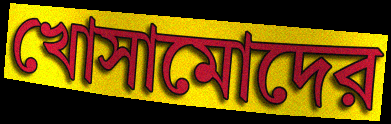
খোসামোদের